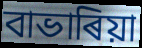
বাভাৰিয়া